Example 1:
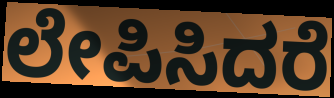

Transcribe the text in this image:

ಲೇಪಿಸಿದರೆ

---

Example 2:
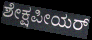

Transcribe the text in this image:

ಶೇಕ್ಷಪೀಯರ್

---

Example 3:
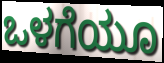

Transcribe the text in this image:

ಒಳಗೆಯೂ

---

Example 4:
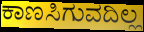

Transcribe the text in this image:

ಕಾಣಸಿಗುವದಿಲ್ಲ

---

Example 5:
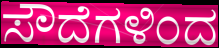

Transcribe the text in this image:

ಸೌದೆಗಳಿಂದ